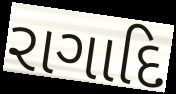
રાગાદિ